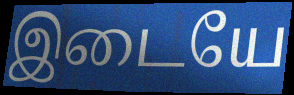
இடையே